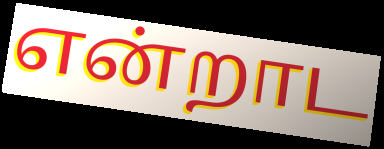
என்றாட